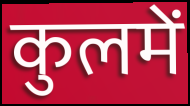
कुलमें